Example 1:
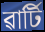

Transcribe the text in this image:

ৱাৰ্টি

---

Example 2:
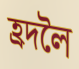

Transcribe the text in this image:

হ্ৰদলৈ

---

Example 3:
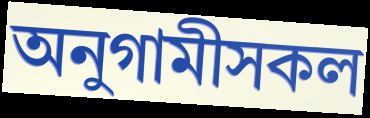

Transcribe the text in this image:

অনুগামীসকল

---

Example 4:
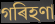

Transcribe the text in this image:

গৰিহণা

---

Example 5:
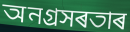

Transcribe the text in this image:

অনগ্ৰসৰতাৰ